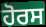
ਹੋਰਸ